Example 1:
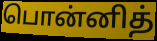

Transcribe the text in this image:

பொன்னித்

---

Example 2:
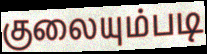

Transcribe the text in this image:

குலையும்படி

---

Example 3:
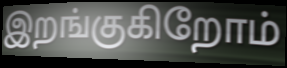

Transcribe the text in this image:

இறங்குகிறோம்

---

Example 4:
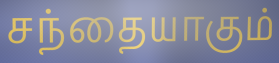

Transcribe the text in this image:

சந்தையாகும்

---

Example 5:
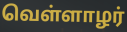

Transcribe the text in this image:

வெள்ளாழர்